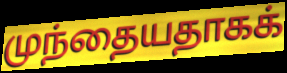
முந்தையதாகக்